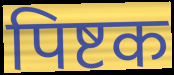
पिष्टक